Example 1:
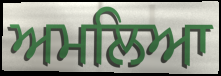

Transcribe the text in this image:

ਅਮਲਿਆ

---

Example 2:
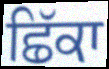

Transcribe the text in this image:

ਛਿੱਕਾ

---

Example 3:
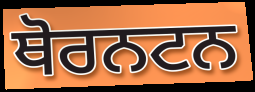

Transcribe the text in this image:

ਥੋਰਨਟਨ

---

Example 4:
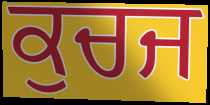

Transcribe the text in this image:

ਕੁਚਜ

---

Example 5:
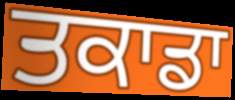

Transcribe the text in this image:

ਤਕਾਡਾ